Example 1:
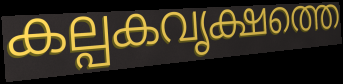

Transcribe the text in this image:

കല്പകവൃക്ഷത്തെ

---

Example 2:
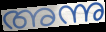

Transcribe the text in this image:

അന്നു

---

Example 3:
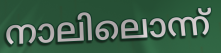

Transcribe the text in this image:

നാലിലൊന്ന്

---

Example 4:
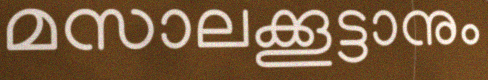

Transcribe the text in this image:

മസാലക്കൂട്ടാനും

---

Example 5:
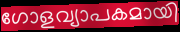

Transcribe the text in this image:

ഗോളവ്യാപകമായി